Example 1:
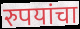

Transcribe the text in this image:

रुपयांचा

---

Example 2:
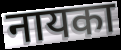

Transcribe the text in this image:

नायका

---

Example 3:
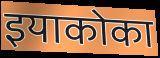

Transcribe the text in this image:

इयाकोका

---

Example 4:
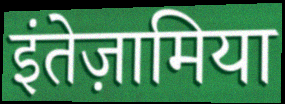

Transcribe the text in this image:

इंतेज़ामिया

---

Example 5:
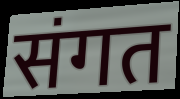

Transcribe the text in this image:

संगत